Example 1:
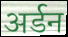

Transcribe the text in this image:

अर्डन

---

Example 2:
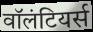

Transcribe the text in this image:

वॉलंटियर्स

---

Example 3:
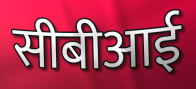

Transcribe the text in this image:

सीबीआई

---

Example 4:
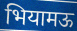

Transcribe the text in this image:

भियामऊ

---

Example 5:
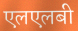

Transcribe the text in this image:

एलएलबी